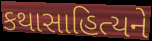
કથાસાહિત્યને